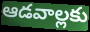
ఆడవాల్లకు